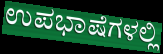
ಉಪಭಾಷೆಗಳಲ್ಲಿ